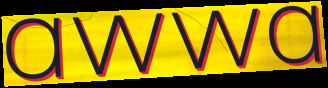
awwa